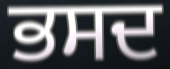
ਭਸਦ